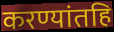
करण्यांतहि